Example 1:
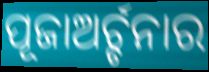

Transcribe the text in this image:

ପୂଜାଅର୍ଚ୍ଚନାର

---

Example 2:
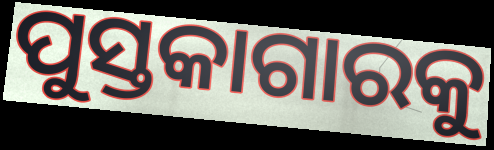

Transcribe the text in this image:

ପୁସ୍ତକାଗାରକୁ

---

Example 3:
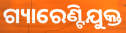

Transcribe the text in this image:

ଗ୍ୟାରେଣ୍ଟିଯୁକ୍ତ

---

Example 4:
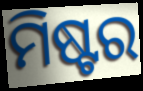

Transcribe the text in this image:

ମିଷ୍ଟର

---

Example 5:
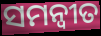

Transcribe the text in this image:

ସମନ୍ଵୀତ